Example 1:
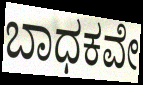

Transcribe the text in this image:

ಬಾಧಕವೇ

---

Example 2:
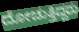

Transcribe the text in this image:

ದೋಚುತ್ತಿದ್ದರು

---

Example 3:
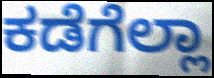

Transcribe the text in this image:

ಕಡೆಗೆಲ್ಲಾ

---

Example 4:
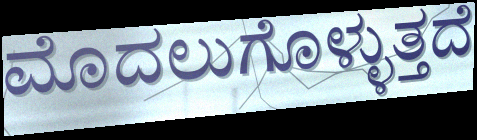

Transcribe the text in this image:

ಮೊದಲುಗೊಳ್ಳುತ್ತದೆ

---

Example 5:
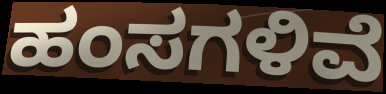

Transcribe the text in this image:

ಹಂಸಗಳಿವೆ